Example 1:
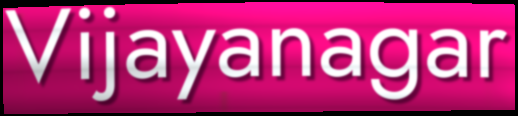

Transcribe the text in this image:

Vijayanagar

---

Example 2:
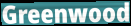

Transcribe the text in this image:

Greenwood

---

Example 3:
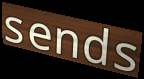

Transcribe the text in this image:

sends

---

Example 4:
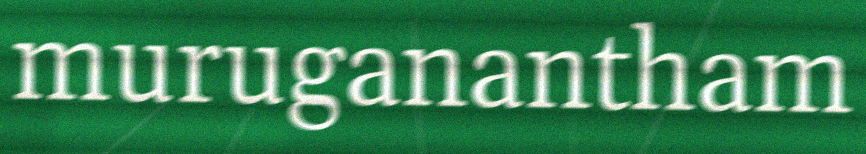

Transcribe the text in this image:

muruganantham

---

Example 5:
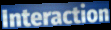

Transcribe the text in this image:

Interaction